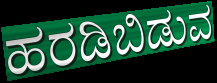
ಹರಡಿಬಿಡುವ